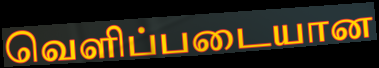
வெளிப்படையான